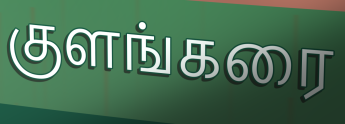
குளங்கரை